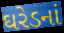
ઘરેડનાં